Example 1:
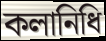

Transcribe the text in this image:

কলানিধি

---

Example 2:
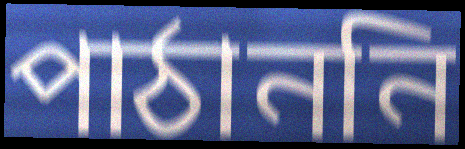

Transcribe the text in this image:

পাঠাননি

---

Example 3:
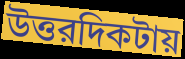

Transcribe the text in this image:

উত্তরদিকটায়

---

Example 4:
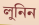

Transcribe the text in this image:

লুনিন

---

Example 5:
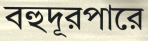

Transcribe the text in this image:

বহুদূরপারে